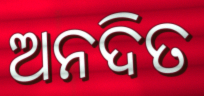
ଅନଦିତ